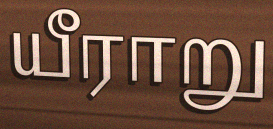
யீராறு